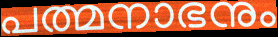
പത്മനാഭനും